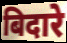
बिदारे